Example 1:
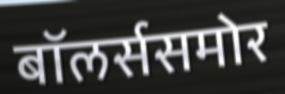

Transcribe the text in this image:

बॉलर्ससमोर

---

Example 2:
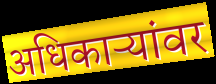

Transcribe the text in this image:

अधिकाऱ्यांवर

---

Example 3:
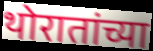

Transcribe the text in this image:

थोरातांच्या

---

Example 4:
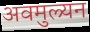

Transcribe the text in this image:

अवमुल्यन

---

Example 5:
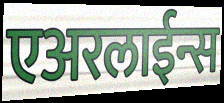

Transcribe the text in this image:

एअरलाईन्स